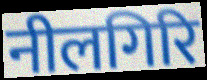
नीलगिरि